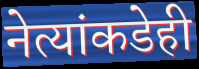
नेत्यांकडेही